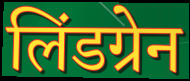
लिंडग्रेन